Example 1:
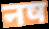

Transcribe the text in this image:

नष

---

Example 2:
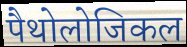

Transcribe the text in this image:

पैथोलोजिकल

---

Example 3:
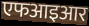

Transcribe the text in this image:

एफआइआर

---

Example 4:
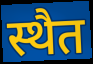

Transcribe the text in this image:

स्थैत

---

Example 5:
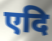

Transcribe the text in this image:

एदि